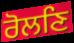
ਰੋਲਣਿ